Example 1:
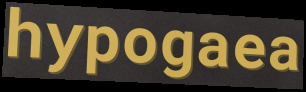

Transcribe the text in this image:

hypogaea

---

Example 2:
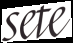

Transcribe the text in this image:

sete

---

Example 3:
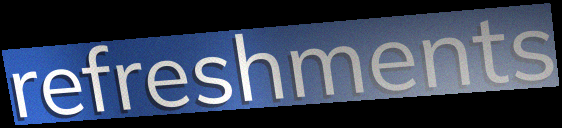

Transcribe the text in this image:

refreshments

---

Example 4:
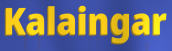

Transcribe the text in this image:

Kalaingar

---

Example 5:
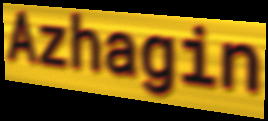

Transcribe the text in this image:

Azhagin